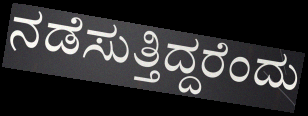
ನಡೆಸುತ್ತಿದ್ದರೆಂದು